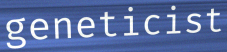
geneticist